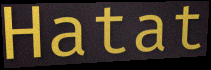
Hatat